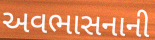
અવભાસનાની